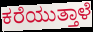
ಕರೆಯುತ್ತಾಳೆ